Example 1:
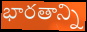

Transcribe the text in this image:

భారతాన్ని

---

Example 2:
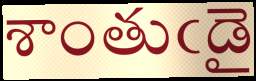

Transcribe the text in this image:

శాంతుఁడై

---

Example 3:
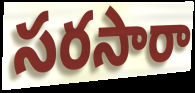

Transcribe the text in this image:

సరసారా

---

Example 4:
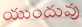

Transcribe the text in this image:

యుందువు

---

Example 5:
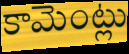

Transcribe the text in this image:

కామెంట్లు